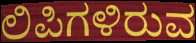
ಲಿಪಿಗಳಿರುವ